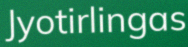
Jyotirlingas